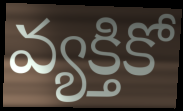
వ్యక్తికో